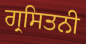
ਗ੍ਰਸਿਤਨੀ